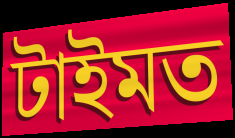
টাইমত